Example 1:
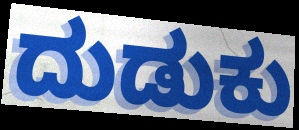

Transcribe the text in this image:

ದುಡುಕು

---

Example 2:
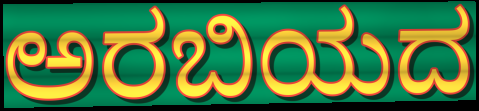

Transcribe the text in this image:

ಅರಬಿಯದ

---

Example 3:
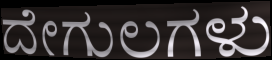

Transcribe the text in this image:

ದೇಗುಲಗಳು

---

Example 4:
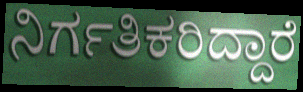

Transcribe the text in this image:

ನಿರ್ಗತಿಕರಿದ್ದಾರೆ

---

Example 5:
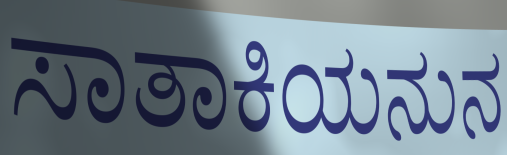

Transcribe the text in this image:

ಸಾತಾಕಿಯನುನ